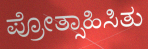
ಪ್ರೋತ್ಸಾಹಿಸಿತು